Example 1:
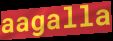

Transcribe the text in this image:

aagalla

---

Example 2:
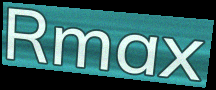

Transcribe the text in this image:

Rmax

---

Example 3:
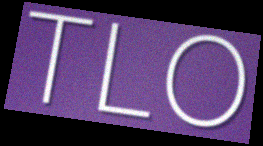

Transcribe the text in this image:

TLO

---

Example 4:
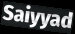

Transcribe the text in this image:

Saiyyad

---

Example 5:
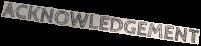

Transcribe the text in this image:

ACKNOWLEDGEMENT